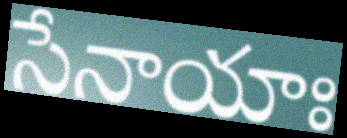
సేనాయాః